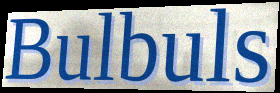
Bulbuls